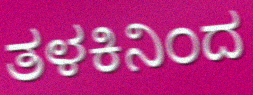
ತಳಕಿನಿಂದ